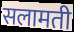
सलामती